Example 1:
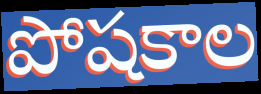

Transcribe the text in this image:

పోషకాల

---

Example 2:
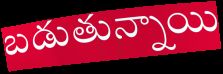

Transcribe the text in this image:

బడుతున్నాయి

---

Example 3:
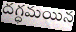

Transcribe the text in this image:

దగ్ధమయిన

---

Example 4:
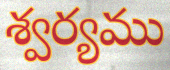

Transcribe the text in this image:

శ్వర్యము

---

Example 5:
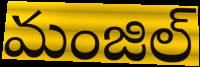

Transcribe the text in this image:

మంజిల్